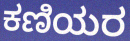
ಕಣಿಯರ